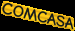
COMCASA